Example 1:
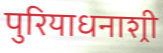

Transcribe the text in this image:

पुरियाधनाश्री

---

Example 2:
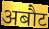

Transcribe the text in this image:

अबौट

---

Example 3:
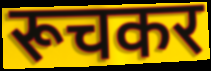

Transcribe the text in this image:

रूचकर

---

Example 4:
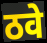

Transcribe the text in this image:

ठवे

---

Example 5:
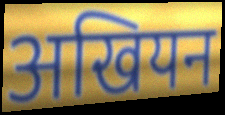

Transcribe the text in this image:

अखियन